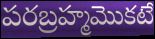
పరబ్రహ్మమొకటే